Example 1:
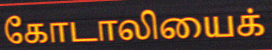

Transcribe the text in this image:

கோடாலியைக்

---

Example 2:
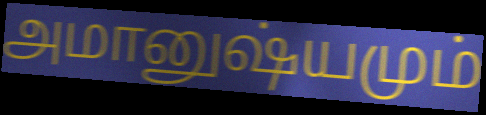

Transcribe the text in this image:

அமானுஷ்யமும்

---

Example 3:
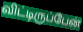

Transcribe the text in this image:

விட்டிருப்பேன்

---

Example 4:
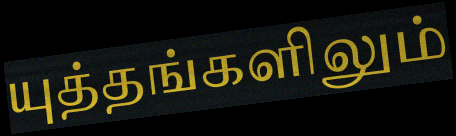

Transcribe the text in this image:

யுத்தங்களிலும்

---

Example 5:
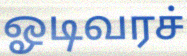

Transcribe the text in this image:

ஓடிவரச்